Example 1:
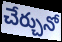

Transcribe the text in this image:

చేర్చునో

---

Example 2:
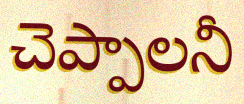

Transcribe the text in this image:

చెప్పాలనీ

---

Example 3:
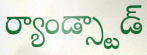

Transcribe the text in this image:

ర్యాండ్స్టాడ్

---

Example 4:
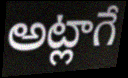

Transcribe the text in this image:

అట్లాగే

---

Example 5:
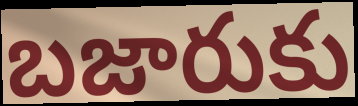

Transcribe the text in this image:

బజారుకు